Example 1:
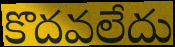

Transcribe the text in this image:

కొదవలేదు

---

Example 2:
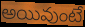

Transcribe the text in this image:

అయివుంటే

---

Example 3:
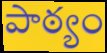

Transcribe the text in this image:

పాఠ్యం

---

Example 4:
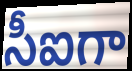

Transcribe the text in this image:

సీఐగా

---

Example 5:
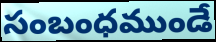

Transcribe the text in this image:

సంబంధముండే